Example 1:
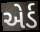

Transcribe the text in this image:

એર્ડ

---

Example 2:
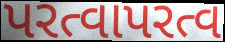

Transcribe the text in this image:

પરત્વાપરત્વ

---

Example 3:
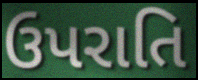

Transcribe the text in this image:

ઉપરાતિ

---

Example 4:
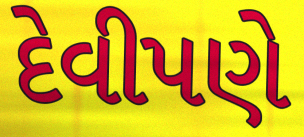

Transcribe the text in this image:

દેવીપણે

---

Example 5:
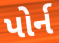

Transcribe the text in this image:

પોર્ન